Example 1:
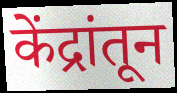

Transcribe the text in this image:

केंद्रांतून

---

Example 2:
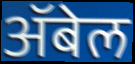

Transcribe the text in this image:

ॲबेल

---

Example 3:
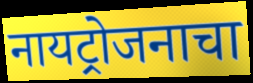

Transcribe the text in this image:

नायट्रोजनाचा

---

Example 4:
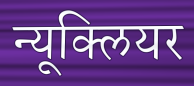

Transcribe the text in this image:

न्यूक्लियर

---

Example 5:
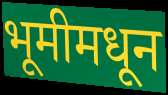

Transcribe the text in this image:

भूमीमधून